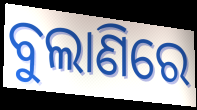
ବୁଲାଣିରେ